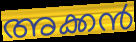
അക്കൻ